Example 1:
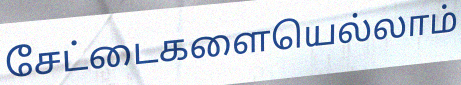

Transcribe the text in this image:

சேட்டைகளையெல்லாம்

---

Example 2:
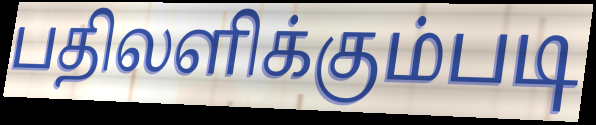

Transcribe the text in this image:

பதிலளிக்கும்படி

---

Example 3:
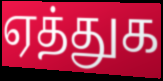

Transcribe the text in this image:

ஏத்துக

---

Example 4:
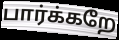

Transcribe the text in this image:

பார்க்கறே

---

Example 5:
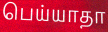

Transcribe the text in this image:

பெய்யாதா